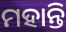
ମହାନ୍ତି